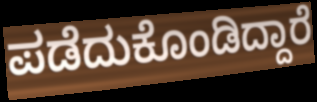
ಪಡೆದುಕೊಂಡಿದ್ದಾರೆ